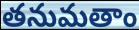
తనుమతాం